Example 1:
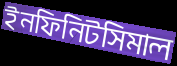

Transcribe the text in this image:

ইনফিনিটসিমাল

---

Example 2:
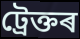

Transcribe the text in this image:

ট্ৰেক্তৰ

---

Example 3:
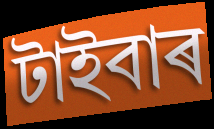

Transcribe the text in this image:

টাইবাৰ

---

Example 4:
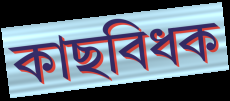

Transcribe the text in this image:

কাছবিধক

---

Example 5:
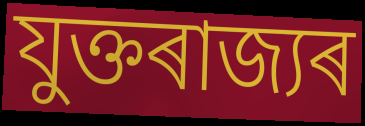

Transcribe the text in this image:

যুক্তৰাজ্যৰ